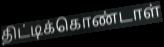
திட்டிக்கொண்டாள்